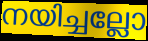
നയിച്ചല്ലോ